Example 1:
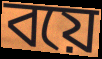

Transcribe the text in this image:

বয়ে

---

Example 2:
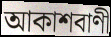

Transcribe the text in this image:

আকাশবাণী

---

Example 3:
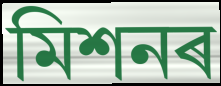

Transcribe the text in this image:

মিশনৰ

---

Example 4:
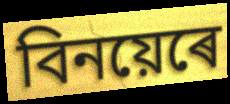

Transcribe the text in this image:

বিনয়েৰে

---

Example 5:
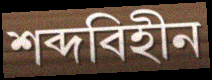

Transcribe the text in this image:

শব্দবিহীন